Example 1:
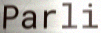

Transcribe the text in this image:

Parli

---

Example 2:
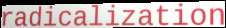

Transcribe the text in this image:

radicalization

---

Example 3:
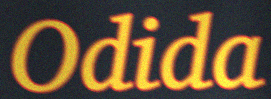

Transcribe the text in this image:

Odida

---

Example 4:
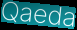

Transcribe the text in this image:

Qaeda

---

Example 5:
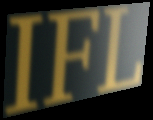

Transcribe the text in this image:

IFL